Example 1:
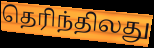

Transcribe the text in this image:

தெரிந்திலது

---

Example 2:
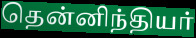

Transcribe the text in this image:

தென்னிந்தியர்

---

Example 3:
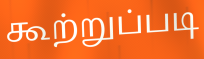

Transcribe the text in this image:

கூற்றுப்படி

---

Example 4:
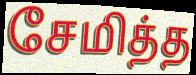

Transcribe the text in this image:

சேமித்த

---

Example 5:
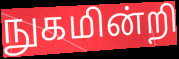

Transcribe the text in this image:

நுகமின்றி